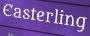
Easterling